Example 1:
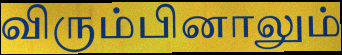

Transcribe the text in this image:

விரும்பினாலும்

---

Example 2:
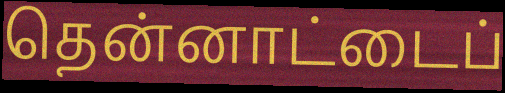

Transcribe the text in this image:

தென்னாட்டைப்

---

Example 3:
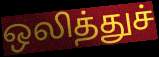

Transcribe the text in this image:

ஒலித்துச்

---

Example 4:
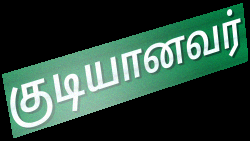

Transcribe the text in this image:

குடியானவர்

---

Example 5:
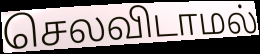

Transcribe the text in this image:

செலவிடாமல்